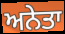
ਅਨੇਤਾ